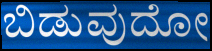
ಬಿಡುವುದೋ